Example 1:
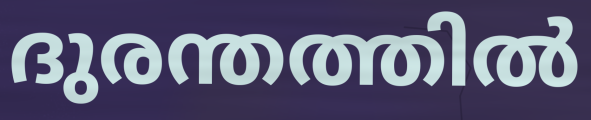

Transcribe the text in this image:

ദുരന്തത്തിൽ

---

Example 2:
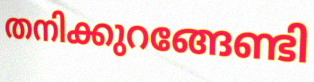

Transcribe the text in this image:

തനിക്കുറങ്ങേണ്ടി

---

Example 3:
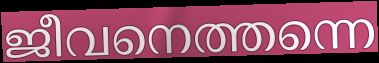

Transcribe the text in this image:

ജീവനെത്തന്നെ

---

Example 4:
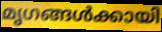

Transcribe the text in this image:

മൃഗങ്ങൾക്കായി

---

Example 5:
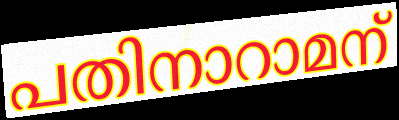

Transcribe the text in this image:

പതിനാറാമന്